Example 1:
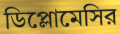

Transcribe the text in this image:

ডিপ্লোমেসির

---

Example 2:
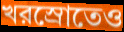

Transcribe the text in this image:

খরস্রোতেও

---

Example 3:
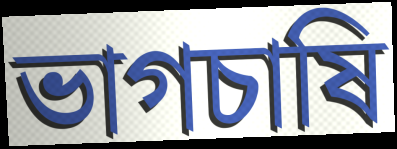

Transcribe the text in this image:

ভাগচাষি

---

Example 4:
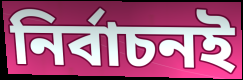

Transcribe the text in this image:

নির্বাচনই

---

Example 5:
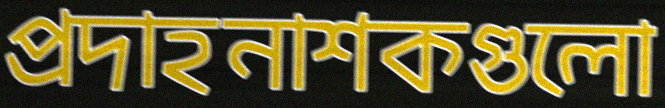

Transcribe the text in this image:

প্রদাহনাশকগুলো